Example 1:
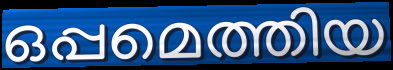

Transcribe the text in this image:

ഒപ്പമെത്തിയ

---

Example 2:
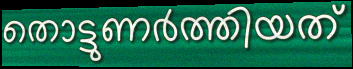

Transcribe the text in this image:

തൊട്ടുണർത്തിയത്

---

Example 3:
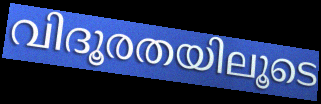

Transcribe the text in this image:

വിദൂരതയിലൂടെ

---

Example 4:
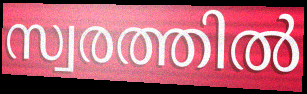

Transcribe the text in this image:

സ്വരത്തിൽ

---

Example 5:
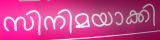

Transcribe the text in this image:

സിനിമയാക്കി